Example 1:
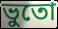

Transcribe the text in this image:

ভুতো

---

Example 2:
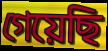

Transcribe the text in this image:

গেয়েছি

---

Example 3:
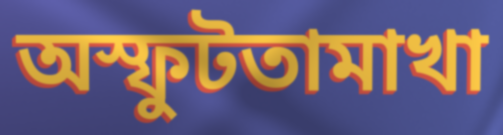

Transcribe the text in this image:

অস্ফুটতামাখা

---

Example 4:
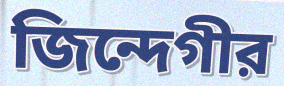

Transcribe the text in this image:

জিন্দেগীর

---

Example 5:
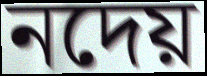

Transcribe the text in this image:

নদেয়